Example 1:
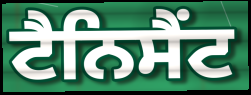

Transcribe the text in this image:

ਟੈਨਿਸੈਂਟ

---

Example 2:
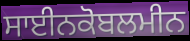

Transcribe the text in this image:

ਸਾਈਨਕੋਬਲਮੀਨ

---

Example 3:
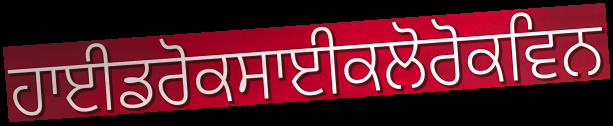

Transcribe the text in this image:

ਹਾਈਡਰੋਕਸਾਈਕਲੋਰੋਕਵਿਨ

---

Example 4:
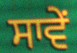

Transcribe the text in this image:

ਸਾਵੇਂ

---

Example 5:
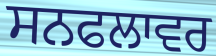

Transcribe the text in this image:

ਸਨਫਲਾਵਰ